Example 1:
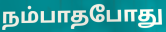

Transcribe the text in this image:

நம்பாதபோது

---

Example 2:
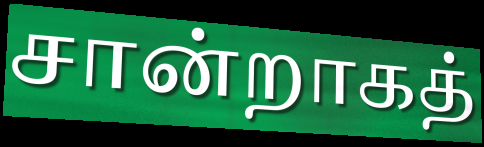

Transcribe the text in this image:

சான்றாகத்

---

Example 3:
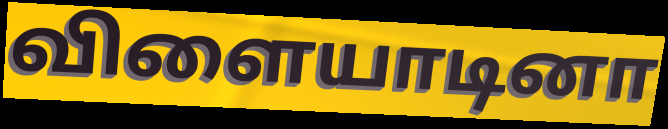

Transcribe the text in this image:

விளையாடினா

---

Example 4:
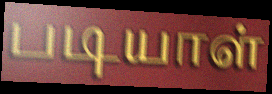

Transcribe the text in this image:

படியாள்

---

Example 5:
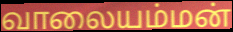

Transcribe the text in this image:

வாலையம்மன்